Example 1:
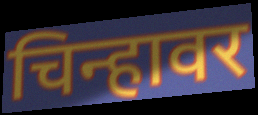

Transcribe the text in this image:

चिन्हावर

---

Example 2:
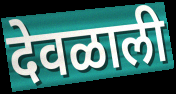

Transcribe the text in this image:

देवळाली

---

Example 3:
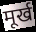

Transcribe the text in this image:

मूर्ख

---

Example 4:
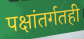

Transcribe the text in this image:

पक्षांतर्गतही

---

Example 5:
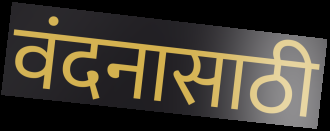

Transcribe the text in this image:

वंदनासाठी